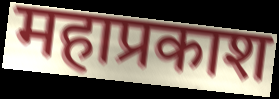
महाप्रकाश